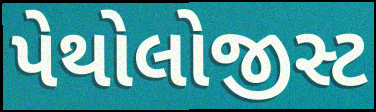
પેથોલોજીસ્ટ